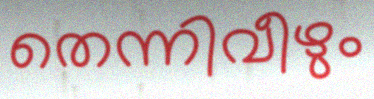
തെന്നിവീഴും